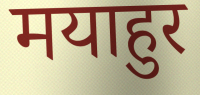
मयाहुर